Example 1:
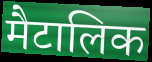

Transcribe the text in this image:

मैटालिक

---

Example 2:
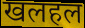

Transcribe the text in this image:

खलहल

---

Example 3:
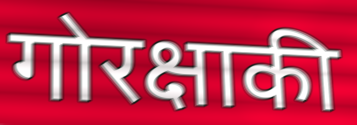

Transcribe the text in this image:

गोरक्षाकी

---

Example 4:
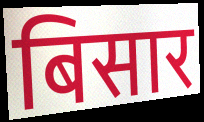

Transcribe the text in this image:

बिसार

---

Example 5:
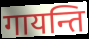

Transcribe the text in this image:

गायन्ति